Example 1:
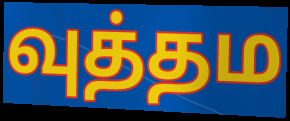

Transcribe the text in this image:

வுத்தம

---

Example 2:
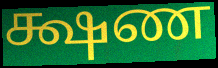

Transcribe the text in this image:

க்ஷண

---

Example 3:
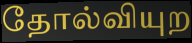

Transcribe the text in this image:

தோல்வியுற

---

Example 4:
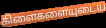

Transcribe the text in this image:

கிளைகளையுடைய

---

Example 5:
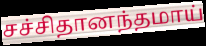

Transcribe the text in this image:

சச்சிதானந்தமாய்